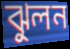
ঝুলন